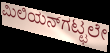
ಮಿಲಿಯನ್‌ಗಟ್ಟಲೇ